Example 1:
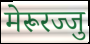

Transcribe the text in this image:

मेरूरज्जु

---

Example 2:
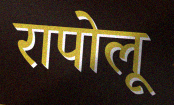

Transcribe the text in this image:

रापोलू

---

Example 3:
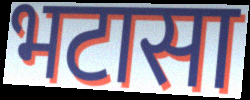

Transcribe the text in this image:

भटासा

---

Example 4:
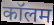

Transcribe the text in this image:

कॉलम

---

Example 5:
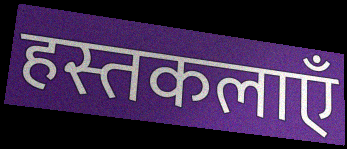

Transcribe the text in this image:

हस्तकलाएँ